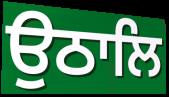
ਉਠਾਲਿ